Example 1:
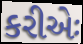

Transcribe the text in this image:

કરીએઃ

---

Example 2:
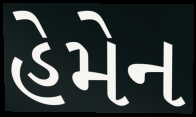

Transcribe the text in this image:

હેમેન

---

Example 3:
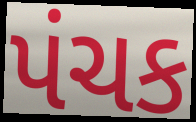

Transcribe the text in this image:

પંચક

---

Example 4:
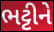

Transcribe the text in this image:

ભટ્ટીને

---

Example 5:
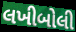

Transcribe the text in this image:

લખીબોલી